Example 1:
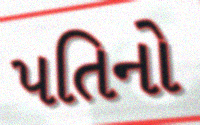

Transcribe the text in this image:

પતિનો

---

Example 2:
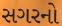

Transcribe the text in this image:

સગરનો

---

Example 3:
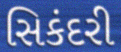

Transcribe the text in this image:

સિકંદરી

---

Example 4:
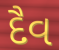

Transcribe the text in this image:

દૈવ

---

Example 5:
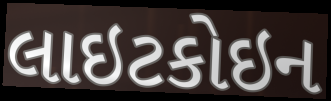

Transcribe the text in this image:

લાઇટકોઇન